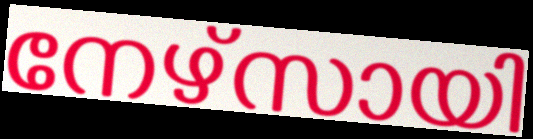
നേഴ്സായി